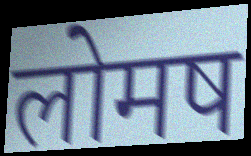
लोमष